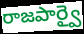
రాజపార్వై